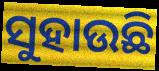
ସୁହାଉଛି